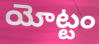
యోట్టం